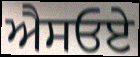
ਐਸਓਏ